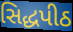
સિદ્ધપીઠ